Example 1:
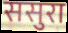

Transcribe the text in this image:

ससुरा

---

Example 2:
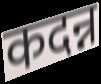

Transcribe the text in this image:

कदन्न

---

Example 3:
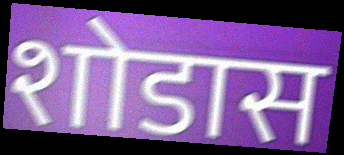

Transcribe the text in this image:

शोडास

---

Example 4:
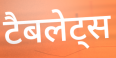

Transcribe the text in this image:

टैबलेट्स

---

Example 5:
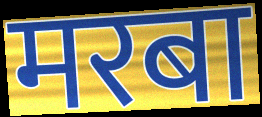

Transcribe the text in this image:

मरबा